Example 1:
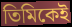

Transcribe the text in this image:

তিমিকেই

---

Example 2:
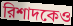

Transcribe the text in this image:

রিশাদকেও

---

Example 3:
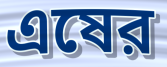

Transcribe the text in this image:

এষের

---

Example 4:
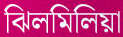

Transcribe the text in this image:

ঝিলমিলিয়া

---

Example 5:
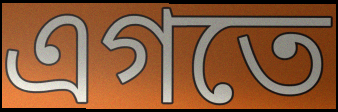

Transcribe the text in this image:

এগতে